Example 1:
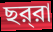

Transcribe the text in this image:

ছর্‌রা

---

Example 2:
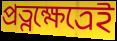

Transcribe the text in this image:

প্রত্নক্ষেত্রেই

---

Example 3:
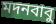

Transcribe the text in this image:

মদনবাবু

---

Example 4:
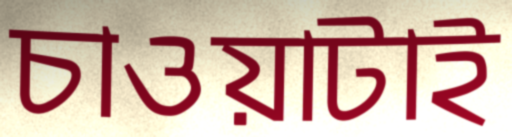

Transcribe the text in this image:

চাওয়াটাই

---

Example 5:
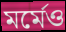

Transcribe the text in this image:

মর্মেও